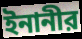
ইনানীর